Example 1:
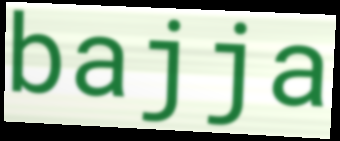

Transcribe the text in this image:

bajja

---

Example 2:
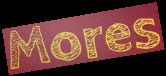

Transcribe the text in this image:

Mores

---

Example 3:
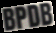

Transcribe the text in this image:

BPDB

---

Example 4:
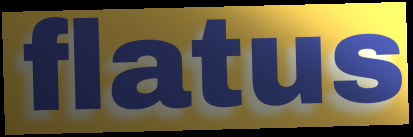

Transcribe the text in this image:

flatus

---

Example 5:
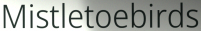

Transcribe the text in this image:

Mistletoebirds